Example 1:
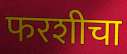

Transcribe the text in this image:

फरशीचा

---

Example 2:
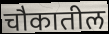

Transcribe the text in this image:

चौकातील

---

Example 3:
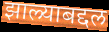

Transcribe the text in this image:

झाल्याबद्दल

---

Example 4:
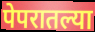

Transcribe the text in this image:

पेपरातल्या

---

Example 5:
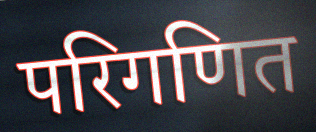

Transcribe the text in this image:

परिगणित